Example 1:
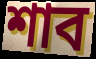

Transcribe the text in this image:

শাব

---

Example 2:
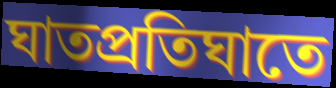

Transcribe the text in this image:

ঘাতপ্রতিঘাতে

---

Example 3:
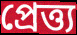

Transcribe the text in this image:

প্রেত্ত্য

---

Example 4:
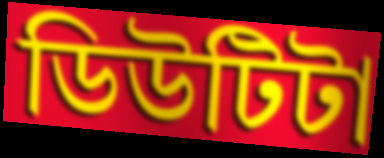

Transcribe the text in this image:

ডিউটিটা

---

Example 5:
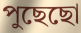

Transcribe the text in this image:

পুছেছো